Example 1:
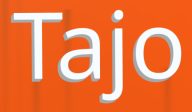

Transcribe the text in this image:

Tajo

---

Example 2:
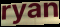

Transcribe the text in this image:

ryan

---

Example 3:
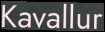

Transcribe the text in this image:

Kavallur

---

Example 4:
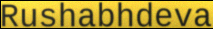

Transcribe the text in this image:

Rushabhdeva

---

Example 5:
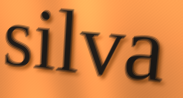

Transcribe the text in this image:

silva